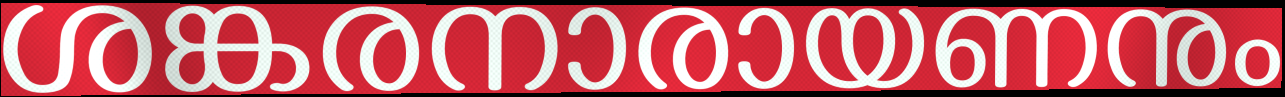
ശങ്കരനാരായണനും